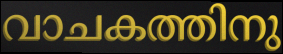
വാചകത്തിനു